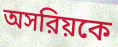
অসরিয়কে